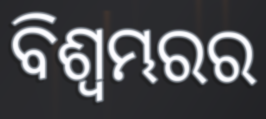
ବିଶ୍ଵମ୍ଭରର